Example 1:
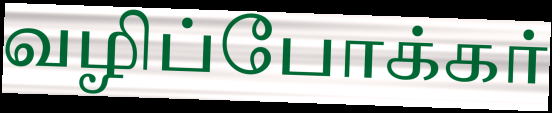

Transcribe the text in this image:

வழிப்போக்கர்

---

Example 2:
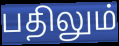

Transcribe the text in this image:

பதிலும்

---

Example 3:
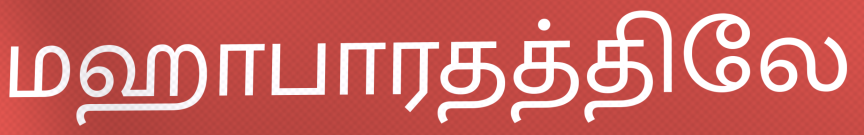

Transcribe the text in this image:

மஹாபாரதத்திலே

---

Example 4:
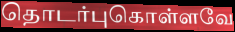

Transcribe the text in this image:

தொடர்புகொள்ளவே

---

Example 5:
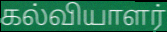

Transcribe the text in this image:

கல்வியாளர்